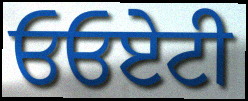
ਓਓਏਟੀ